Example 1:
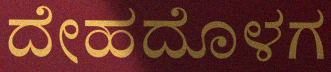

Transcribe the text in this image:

ದೇಹದೊಳಗ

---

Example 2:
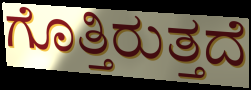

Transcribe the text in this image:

ಗೊತ್ತಿರುತ್ತದೆ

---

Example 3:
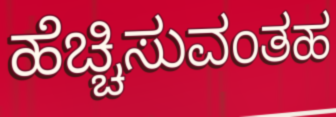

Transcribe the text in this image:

ಹೆಚ್ಚಿಸುವಂತಹ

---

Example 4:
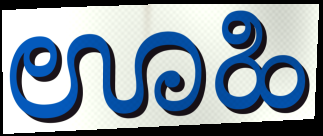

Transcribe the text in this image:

ಊಹಿ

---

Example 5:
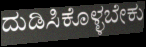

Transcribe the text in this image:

ದುಡಿಸಿಕೊಳ್ಳಬೇಕು